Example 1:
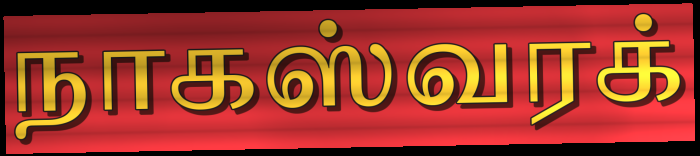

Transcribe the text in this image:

நாகஸ்வரக்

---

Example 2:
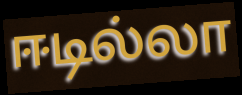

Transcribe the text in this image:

ஈடில்லா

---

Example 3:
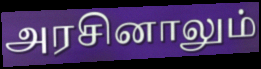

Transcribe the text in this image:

அரசினாலும்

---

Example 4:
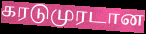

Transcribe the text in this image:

கரடுமுரடான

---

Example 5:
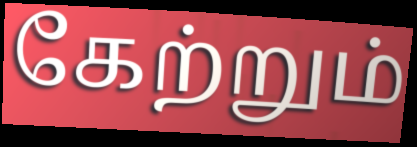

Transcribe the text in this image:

கேற்றும்